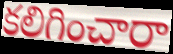
కలిగించారా